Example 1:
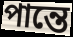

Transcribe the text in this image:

পান্তে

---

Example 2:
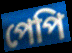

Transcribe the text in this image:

পেপি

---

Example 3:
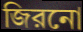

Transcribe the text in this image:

জিরনো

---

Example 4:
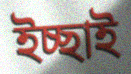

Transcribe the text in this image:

ইচ্ছাই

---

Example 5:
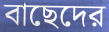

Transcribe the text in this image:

বাছেদের